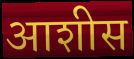
आशीस